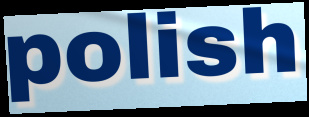
polish